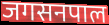
जगसनपाल